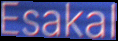
Esakal